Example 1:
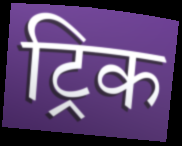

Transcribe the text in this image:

ट्रिक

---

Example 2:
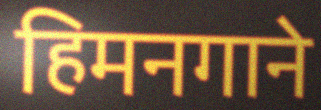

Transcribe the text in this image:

हिमनगाने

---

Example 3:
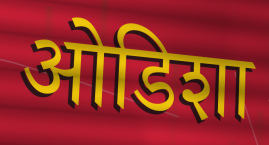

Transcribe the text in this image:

ओडिशा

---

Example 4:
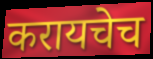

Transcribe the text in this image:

करायचेच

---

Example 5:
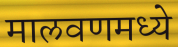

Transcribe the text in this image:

मालवणमध्ये